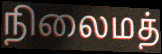
நிலைமத்